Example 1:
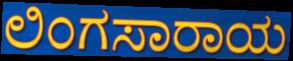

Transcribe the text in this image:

ಲಿಂಗಸಾರಾಯ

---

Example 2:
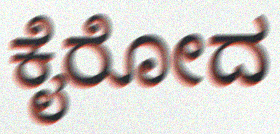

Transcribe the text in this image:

ಕೈರೋದ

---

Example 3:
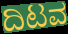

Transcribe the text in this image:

ದಿಟವ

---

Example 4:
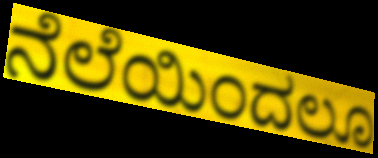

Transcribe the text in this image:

ನೆಲೆಯಿಂದಲೂ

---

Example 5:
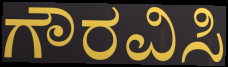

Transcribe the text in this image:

ಗೌರವಿಸಿ